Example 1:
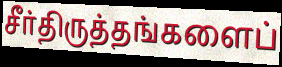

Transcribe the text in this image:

சீர்திருத்தங்களைப்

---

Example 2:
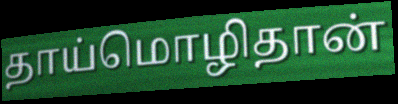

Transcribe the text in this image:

தாய்மொழிதான்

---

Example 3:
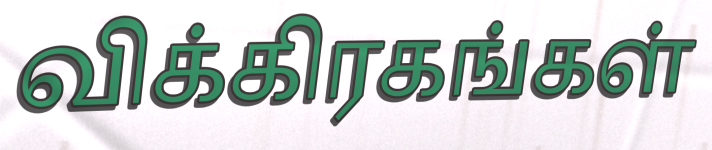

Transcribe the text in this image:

விக்கிரகங்கள்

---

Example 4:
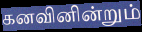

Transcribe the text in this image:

கனவினின்றும்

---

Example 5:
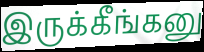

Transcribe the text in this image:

இருக்கீங்கனு